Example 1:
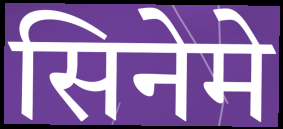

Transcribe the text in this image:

सिनेमे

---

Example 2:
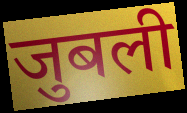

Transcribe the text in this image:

जुबली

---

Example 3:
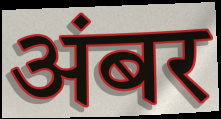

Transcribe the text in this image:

अंबर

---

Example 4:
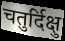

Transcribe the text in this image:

चतुर्दिक्षु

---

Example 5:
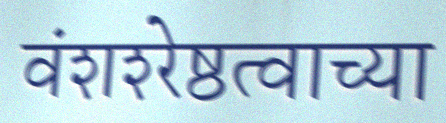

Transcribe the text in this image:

वंशश्रेष्ठत्वाच्या